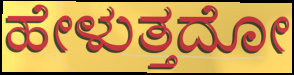
ಹೇಳುತ್ತದೋ